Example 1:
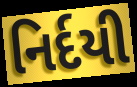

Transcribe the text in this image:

નિર્દયી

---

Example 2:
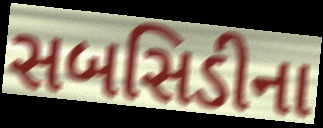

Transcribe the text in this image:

સબસિડીના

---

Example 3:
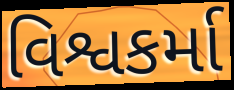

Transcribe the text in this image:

વિશ્વકર્મા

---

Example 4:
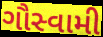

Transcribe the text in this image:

ગૌસ્વામી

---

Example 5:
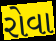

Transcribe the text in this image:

રોવા